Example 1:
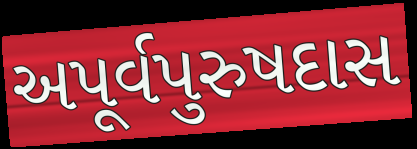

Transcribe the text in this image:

અપૂર્વપુરુષદાસ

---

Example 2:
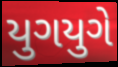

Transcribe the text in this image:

યુગયુગે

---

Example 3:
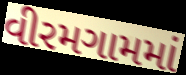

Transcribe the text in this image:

વીરમગામમાં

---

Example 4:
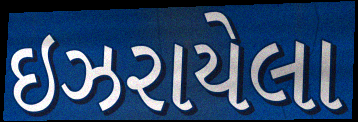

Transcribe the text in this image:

ઇઝરાયેલા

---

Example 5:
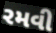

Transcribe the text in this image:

રમવી